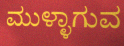
ಮುಳ್ಳಾಗುವ